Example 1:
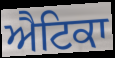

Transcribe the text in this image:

ਐਟਿਕਾ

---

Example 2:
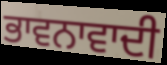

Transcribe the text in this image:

ਭਾਵਨਾਵਾਦੀ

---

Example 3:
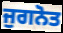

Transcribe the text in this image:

ਜੁਗਨੋਤ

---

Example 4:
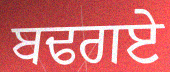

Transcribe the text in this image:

ਬਢਗਏ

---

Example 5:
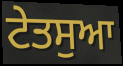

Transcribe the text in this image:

ਟੇਤਸੁਆ